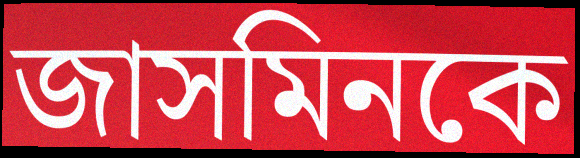
জাসমিনকে